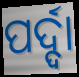
ପର୍ଦ୍ଦା